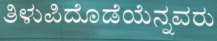
ತಿಳುಪಿದೊಡೆಯೆನ್ನವರು